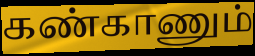
கண்காணும்